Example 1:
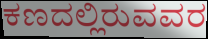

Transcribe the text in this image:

ಕಣದಲ್ಲಿರುವವರ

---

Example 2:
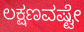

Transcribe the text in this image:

ಲಕ್ಷಣವಷ್ಟೇ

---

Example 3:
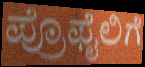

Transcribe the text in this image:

ಪ್ರೊಫೈಲಿಗೆ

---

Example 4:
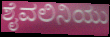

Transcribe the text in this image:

ಶೈವಲಿನಿಯು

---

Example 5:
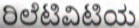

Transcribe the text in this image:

ರಿಲೆಟಿವಿಟಿಯ